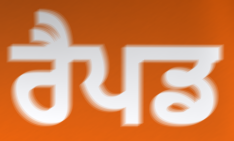
ਰੈਪਡ